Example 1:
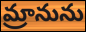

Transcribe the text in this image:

మ్రానును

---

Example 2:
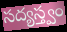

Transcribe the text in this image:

సద్యస్త్వం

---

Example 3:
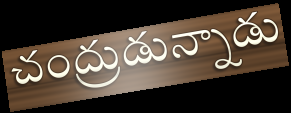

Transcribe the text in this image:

చంద్రుడున్నాడు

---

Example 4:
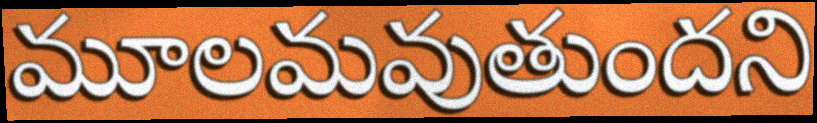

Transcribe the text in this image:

మూలమవుతుందని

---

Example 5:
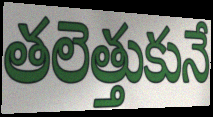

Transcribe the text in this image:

తలెత్తుకునే